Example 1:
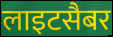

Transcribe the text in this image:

लाइटसैबर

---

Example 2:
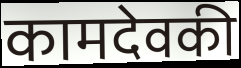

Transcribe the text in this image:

कामदेवकी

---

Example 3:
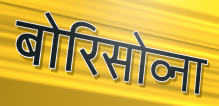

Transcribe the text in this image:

बोरिसोव्ना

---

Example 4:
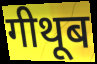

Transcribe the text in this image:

गीथूब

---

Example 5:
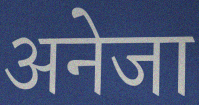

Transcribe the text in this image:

अनेजा